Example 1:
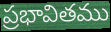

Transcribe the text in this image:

ప్రభావితము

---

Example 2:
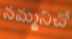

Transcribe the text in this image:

నమ్మనిచో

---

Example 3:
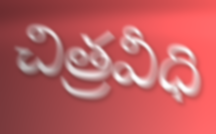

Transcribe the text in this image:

చిత్రవీధి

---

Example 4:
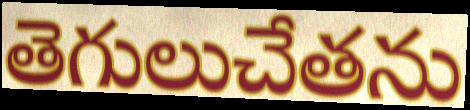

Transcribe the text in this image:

తెగులుచేతను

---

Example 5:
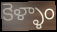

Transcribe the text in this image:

కెళ్ళాం